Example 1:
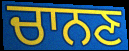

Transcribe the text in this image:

ਚਾਨਣ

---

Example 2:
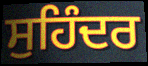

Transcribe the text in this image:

ਸੁਹਿੰਦਰ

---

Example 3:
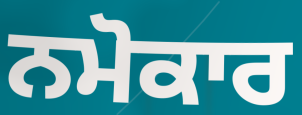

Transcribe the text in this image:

ਨਮੋਕਾਰ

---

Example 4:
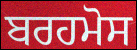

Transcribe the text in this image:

ਬਰਹਮੋਸ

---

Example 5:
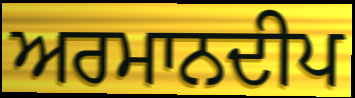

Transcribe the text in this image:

ਅਰਮਾਨਦੀਪ